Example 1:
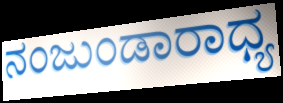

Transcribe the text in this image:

ನಂಜುಂಡಾರಾಧ್ಯ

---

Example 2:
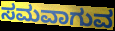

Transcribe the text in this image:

ಸಮವಾಗುವ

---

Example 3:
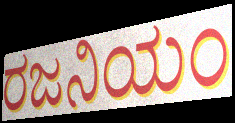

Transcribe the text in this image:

ರಜನಿಯಂ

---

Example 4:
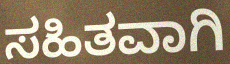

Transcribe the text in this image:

ಸಹಿತವಾಗಿ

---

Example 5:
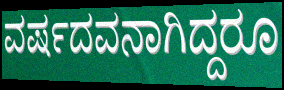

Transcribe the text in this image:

ವರ್ಷದವನಾಗಿದ್ದರೂ